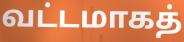
வட்டமாகத்